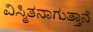
ವಿಸ್ಮಿತನಾಗುತ್ತಾನೆ